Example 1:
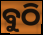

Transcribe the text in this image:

ବୁଠି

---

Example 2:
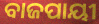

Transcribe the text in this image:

ବାଜପାୟୀ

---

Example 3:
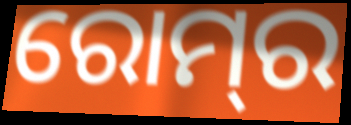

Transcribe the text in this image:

ରୋମ୍‌ର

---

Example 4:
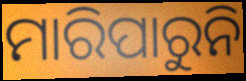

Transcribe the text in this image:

ମାରିପାରୁନି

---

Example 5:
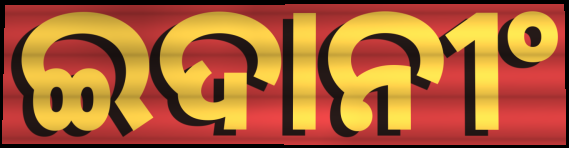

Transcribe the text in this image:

ଇଦାନୀଂ